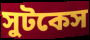
সুটকেস